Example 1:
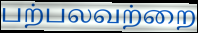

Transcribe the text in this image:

பற்பலவற்றை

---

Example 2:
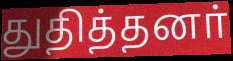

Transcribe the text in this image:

துதித்தனர்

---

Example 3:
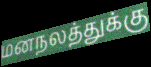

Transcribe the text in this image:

மனநலத்துக்கு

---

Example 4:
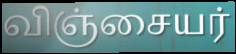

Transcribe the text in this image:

விஞ்சையர்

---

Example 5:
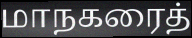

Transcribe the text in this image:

மாநகரைத்